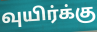
வுயிர்க்கு